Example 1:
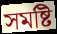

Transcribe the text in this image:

সমষ্টি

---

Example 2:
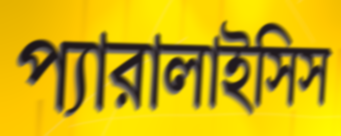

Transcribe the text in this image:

প্যারালাইসিস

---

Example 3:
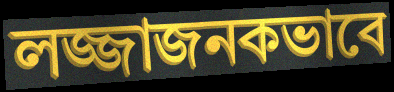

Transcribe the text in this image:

লজ্জাজনকভাবে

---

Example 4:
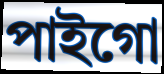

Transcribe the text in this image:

পাইগো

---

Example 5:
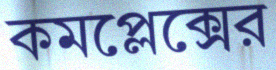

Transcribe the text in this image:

কমপ্লেক্সের